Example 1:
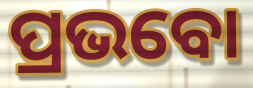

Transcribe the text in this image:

ପ୍ରଭବୋ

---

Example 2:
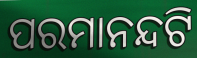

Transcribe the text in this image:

ପରମାନନ୍ଦଟି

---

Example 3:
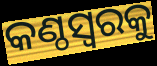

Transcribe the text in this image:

କଣ୍ଠସ୍ୱରକୁ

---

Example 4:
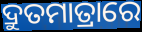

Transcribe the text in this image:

ଦ୍ରୁତମାତ୍ରାରେ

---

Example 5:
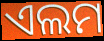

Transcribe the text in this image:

ଏଲମ